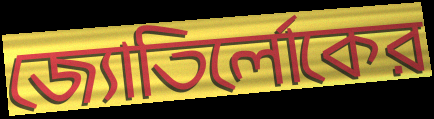
জ্যোতির্লোকের